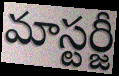
మాస్టర్జీ